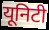
यूनिटी